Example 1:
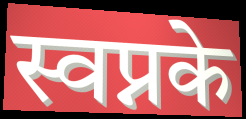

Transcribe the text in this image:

स्वप्नके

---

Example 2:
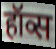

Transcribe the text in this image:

हॉव्स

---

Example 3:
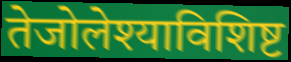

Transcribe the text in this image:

तेजोलेश्याविशिष्ट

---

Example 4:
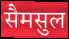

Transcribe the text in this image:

सैमसुल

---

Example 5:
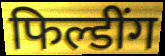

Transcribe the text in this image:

फिल्डींग